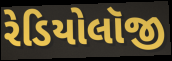
રેડિયોલૉજી